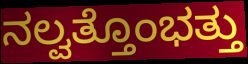
ನಲ್ವತ್ತೊಂಭತ್ತು